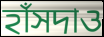
হাঁসদাও